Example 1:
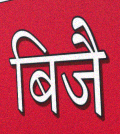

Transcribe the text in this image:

बिजै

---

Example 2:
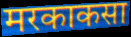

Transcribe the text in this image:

मरकाकसा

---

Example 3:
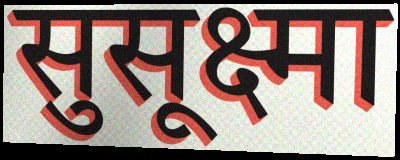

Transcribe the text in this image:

सुसूक्ष्मा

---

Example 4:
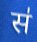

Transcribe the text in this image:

स॑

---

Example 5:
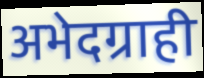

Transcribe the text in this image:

अभेदग्राही